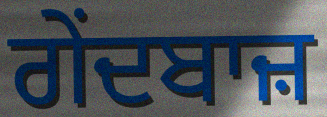
ਗੇਂਦਬਾਜ਼